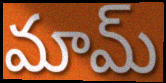
మామ్